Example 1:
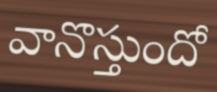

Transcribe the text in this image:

వానొస్తుందో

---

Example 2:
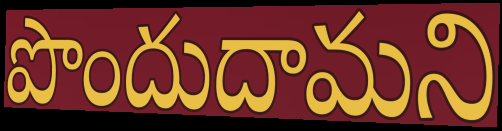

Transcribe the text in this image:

పొందుదామని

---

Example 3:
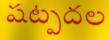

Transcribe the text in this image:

షట్పదల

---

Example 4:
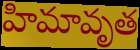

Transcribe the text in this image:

హిమావృత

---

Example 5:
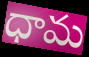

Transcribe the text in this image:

ధామ